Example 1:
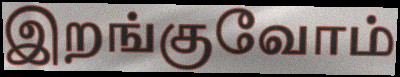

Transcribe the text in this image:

இறங்குவோம்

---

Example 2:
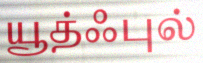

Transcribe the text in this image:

யூத்ஃபுல்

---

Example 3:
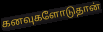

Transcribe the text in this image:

கனவுகளோடுதான்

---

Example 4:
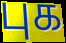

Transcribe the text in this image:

புக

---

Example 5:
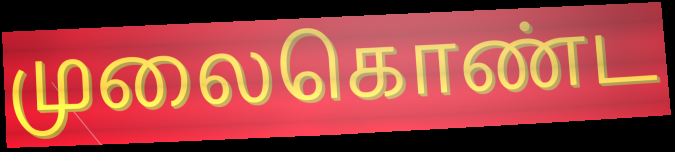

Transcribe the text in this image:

முலைகொண்ட